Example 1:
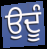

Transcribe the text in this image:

ਉਦੂੰ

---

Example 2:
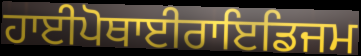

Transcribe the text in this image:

ਹਾਈਪੋਥਾਈਰਾਇਡਿਜਮ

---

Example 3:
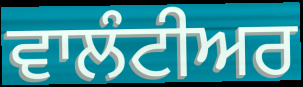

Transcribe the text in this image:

ਵਾਲੰਟੀਅਰ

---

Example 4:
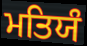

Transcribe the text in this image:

ਮਤਿਯੰ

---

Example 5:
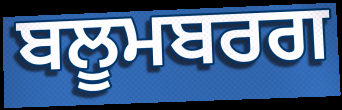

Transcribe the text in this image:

ਬਲੂਮਬਰਗ